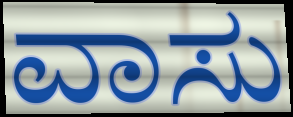
ವಾಸು